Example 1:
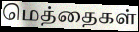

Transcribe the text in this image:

மெத்தைகள்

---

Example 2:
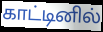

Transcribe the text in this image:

காட்டினில்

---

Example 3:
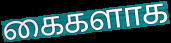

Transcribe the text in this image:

கைகளாக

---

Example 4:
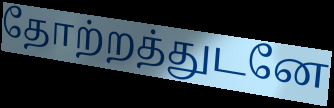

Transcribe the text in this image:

தோற்றத்துடனே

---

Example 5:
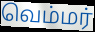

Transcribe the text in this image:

வெம்மர்